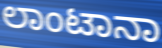
ಲಾಂಟಾನಾ